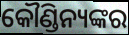
କୌଣ୍ଡିନ୍ୟଙ୍କର